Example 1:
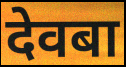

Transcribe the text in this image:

देवबा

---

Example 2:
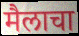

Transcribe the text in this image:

मैलाचा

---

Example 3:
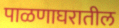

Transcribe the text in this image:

पाळणाघरातील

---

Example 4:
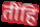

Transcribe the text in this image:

तींहि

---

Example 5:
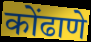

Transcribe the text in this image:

कोंढाणे